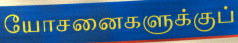
யோசனைகளுக்குப்